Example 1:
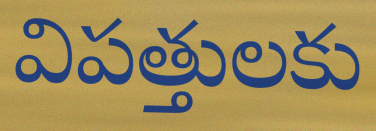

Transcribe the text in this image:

విపత్తులకు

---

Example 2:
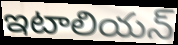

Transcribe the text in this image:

ఇటాలియన్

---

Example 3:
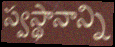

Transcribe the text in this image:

స్వస్థానాన్ని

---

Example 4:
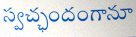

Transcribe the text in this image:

స్వచ్ఛందంగానూ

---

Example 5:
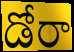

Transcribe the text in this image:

డోరా